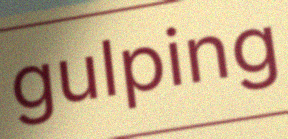
gulping